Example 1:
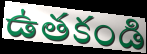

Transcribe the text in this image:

ఉతకండి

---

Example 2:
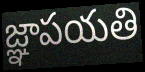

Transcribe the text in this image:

జ్ఞాపయతి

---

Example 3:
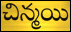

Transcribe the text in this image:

చిన్మయి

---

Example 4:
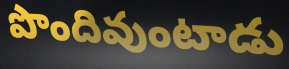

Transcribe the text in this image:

పొందివుంటాడు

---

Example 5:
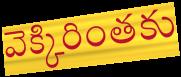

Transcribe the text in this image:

వెక్కిరింతకు